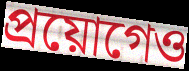
প্ৰয়োগেও